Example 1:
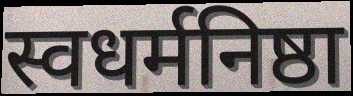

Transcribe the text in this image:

स्वधर्मनिष्ठा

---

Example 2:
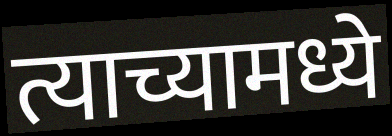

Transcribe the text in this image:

त्याच्यामध्ये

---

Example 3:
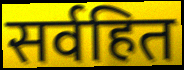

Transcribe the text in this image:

सर्वहित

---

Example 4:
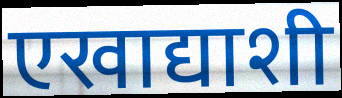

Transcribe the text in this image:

एखाद्याशी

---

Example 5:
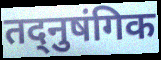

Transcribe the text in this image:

तद्नुषंगिक